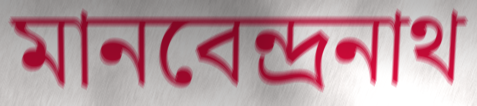
মানবেন্দ্রনাথ